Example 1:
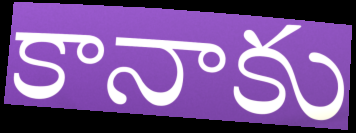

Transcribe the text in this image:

కానాకు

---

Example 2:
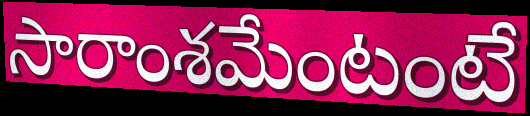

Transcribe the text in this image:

సారాంశమేంటంటే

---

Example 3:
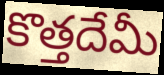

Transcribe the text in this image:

కొత్తదేమీ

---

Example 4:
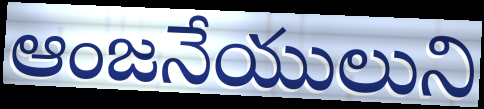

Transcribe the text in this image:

ఆంజనేయులుని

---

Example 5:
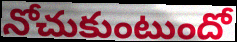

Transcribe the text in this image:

నోచుకుంటుందో